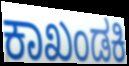
ಕಾಖಂಡಕಿ